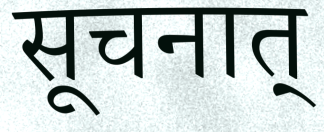
सूचनात्